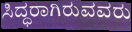
ಸಿದ್ಧರಾಗಿರುವವರು